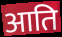
आति